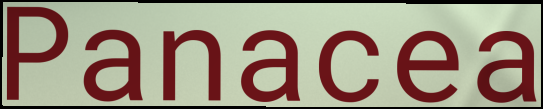
Panacea